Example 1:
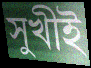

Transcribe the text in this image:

সুখীই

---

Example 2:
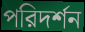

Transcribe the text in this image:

পরিদর্শন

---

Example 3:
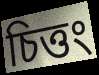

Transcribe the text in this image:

চিত্তং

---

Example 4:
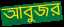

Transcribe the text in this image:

আবুজর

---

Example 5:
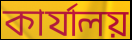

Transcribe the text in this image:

কার্যালয়